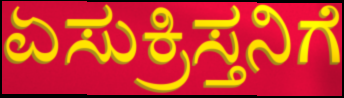
ಏಸುಕ್ರಿಸ್ತನಿಗೆ